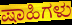
ಷಾಹಿಗಳು